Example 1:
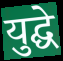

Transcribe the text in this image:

युद्घे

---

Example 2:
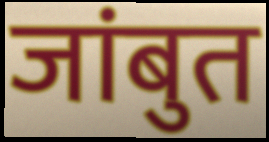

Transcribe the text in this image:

जांबुत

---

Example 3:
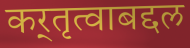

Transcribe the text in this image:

कर्तृत्वाबद्दल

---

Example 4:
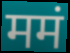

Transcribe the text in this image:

ममं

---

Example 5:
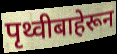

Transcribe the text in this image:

पृथ्वीबाहेरून